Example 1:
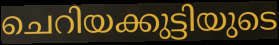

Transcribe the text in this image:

ചെറിയക്കുട്ടിയുടെ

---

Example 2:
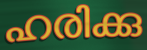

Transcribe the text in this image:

ഹരിക്കു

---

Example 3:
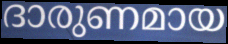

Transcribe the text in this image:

ദാരുണമായ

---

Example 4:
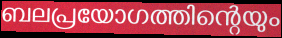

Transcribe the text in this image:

ബലപ്രയോഗത്തിന്റെയും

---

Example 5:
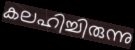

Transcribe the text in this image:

കലഹിച്ചിരുന്നു